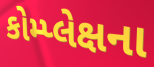
કોમ્પ્લેક્ષના